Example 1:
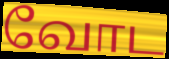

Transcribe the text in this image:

வோட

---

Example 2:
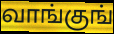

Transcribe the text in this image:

வாங்குங்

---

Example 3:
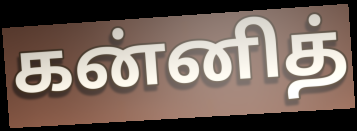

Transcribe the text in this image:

கன்னித்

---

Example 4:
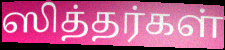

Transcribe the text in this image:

ஸித்தர்கள்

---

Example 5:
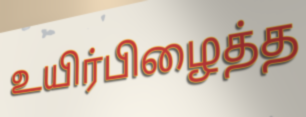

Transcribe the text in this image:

உயிர்பிழைத்த